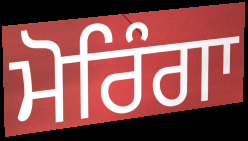
ਮੋਰਿੰਗਾ